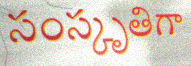
సంస్కృతిగా